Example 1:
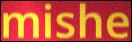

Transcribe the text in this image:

mishe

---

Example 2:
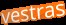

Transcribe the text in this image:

vestras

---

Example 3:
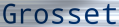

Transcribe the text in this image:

Grosset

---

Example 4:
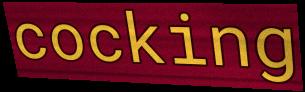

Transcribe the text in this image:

cocking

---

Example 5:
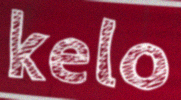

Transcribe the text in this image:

kelo